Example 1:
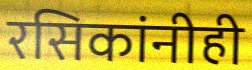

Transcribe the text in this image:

रसिकांनीही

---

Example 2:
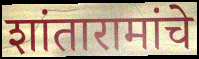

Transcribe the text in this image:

शांतारामांचे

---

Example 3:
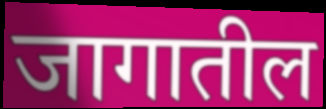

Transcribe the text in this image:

जागातील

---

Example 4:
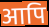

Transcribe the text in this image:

आपि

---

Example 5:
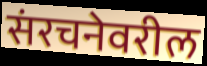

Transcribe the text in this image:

संरचनेवरील